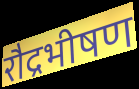
रौद्रभीषण